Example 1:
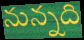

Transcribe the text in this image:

నున్నది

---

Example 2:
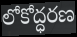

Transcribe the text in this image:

లోకోద్ధరణ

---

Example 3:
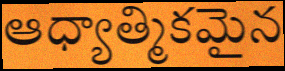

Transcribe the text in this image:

ఆధ్యాత్మికమైన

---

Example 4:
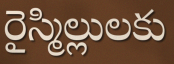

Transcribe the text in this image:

రైస్మిల్లులకు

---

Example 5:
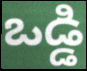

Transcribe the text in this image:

ఒడ్డి